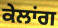
ਕੇਲਾਂਗ